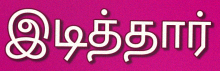
இடித்தார்